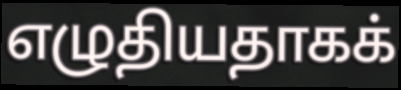
எழுதியதாகக்